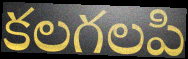
కలగలపి